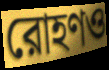
রোহণও